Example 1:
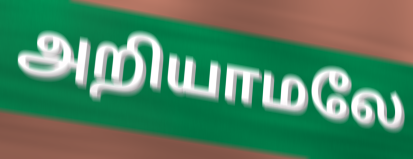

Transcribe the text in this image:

அறியாமலே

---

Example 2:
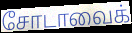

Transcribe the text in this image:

சோடாவைக்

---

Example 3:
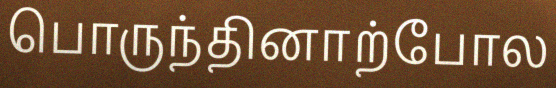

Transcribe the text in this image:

பொருந்தினாற்போல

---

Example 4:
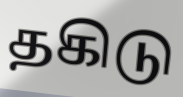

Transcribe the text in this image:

தகிடு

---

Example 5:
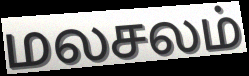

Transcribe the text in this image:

மலசலம்